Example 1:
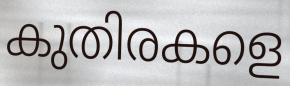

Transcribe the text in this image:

കുതിരകളെ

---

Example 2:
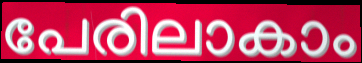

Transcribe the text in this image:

പേരിലാകാം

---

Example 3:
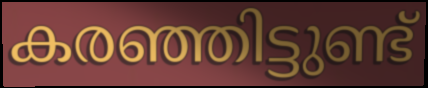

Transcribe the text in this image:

കരഞ്ഞിട്ടുണ്ട്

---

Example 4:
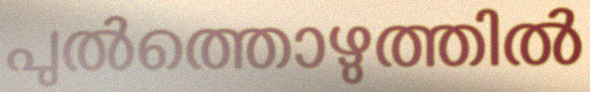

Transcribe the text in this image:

പുൽത്തൊഴുത്തിൽ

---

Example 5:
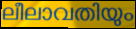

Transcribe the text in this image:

ലീലാവതിയും